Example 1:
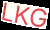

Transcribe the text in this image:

LKG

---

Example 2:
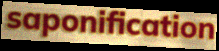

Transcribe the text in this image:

saponification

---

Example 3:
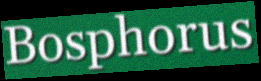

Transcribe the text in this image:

Bosphorus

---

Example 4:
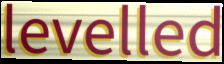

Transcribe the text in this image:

levelled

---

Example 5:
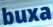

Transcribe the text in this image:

buxa